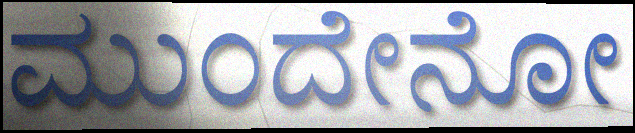
ಮುಂದೇನೋ